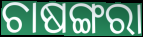
ଚାଷଙ୍ଗରା